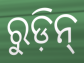
ରୁଡ଼ିନ୍